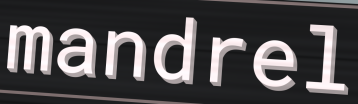
mandrel